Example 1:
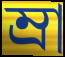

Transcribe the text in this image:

ম্রা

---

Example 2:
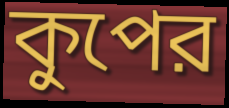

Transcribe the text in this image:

কুপের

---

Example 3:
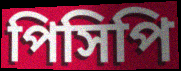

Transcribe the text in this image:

পিসিপি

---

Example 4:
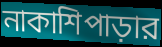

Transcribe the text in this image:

নাকাশিপাড়ার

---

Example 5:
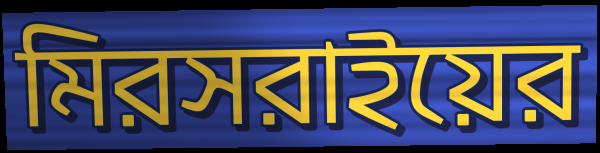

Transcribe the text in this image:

মিরসরাইয়ের